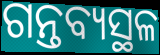
ଗନ୍ତବ୍ୟସ୍ଥଳ